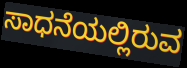
ಸಾಧನೆಯಲ್ಲಿರುವ